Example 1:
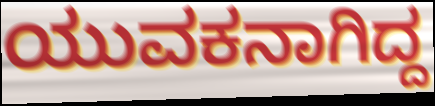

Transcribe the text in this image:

ಯುವಕನಾಗಿದ್ದ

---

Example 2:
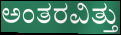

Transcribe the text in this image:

ಅಂತರವಿತ್ತು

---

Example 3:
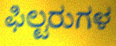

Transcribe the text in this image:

ಫಿಲ್ಟರುಗಳ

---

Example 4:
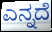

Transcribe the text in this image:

ಎನ್ನದೆ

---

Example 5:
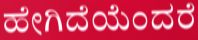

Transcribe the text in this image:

ಹೇಗಿದೆಯೆಂದರೆ